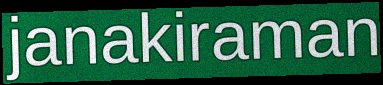
janakiraman